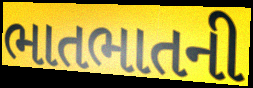
ભાતભાતની